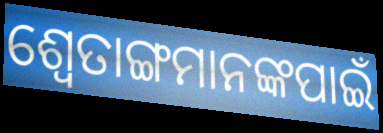
ଶ୍ୱେତାଙ୍ଗମାନଙ୍କପାଇଁ